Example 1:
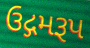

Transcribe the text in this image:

ઉદ્ગમરૂપ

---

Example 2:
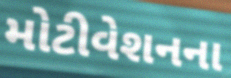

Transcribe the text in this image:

મોટીવેશનના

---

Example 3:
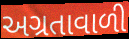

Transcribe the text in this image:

અગ્રતાવાળી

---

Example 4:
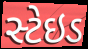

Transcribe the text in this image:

સ્ટેઇડ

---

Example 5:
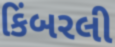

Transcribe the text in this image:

કિંબરલી